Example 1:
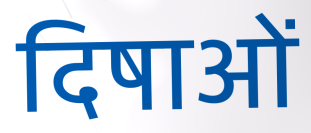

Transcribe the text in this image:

दिषाओं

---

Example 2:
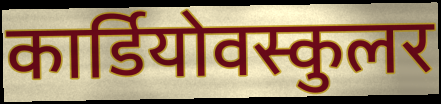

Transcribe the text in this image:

कार्डियोवस्कुलर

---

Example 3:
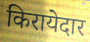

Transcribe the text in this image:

किरायेदार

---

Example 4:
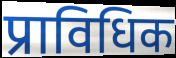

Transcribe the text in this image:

प्राविधिक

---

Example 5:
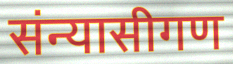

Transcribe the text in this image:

संन्यासीगण